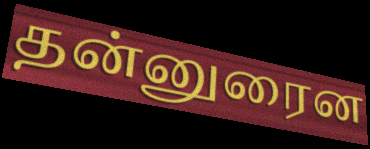
தன்னுரைன